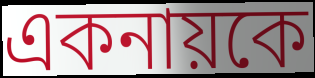
একনায়কে